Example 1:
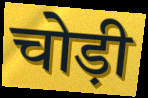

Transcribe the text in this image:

चोड़ी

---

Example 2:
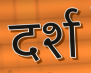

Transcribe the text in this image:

दर्श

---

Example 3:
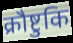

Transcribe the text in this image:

क्रौष्टुकि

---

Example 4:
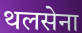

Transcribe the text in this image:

थलसेना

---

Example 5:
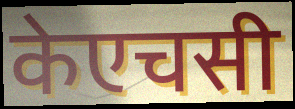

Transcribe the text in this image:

केएचसी